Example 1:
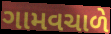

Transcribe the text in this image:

ગામવચાળે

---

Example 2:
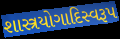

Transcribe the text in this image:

શાસ્ત્રયોગાદિસ્વરૂપ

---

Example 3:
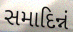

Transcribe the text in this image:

સમાદિન્નં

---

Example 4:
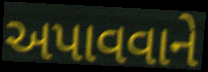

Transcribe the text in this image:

અપાવવાને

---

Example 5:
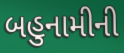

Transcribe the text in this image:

બહુનામીની